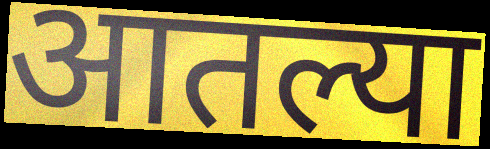
आतल्या